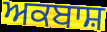
ਅਕਬਾਸ਼